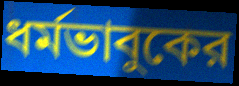
ধর্মভাবুকের